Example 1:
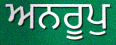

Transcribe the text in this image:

ਅਨਰੂਪੁ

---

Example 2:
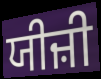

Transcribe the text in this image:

ਯੀਜ਼ੀ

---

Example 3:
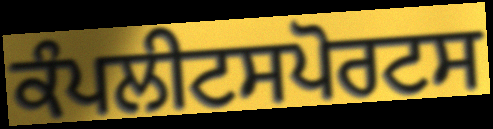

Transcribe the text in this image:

ਕੰਪਲੀਟਸਪੋਰਟਸ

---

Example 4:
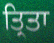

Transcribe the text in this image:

ਤ੍ਰਿਤਾ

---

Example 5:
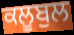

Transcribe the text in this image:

ਕਲੂਬੁਲ